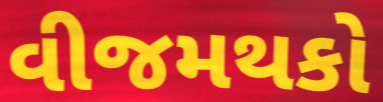
વીજમથકો